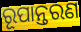
ରୂପାନ୍ତରଣ